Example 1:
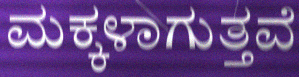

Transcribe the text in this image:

ಮಕ್ಕಳಾಗುತ್ತವೆ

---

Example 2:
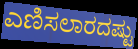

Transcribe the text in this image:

ಎಣಿಸಲಾರದಷ್ಟು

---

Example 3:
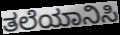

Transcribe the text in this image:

ತಲೆಯಾನಿಸಿ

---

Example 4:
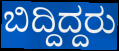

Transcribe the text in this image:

ಬಿದ್ದಿದ್ದರು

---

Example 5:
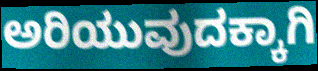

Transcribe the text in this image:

ಅರಿಯುವುದಕ್ಕಾಗಿ